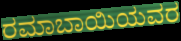
ರಮಾಬಾಯಿಯವರ